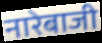
नारेबाजी